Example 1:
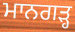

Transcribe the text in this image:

ਮਾਨਗੜ੍ਹ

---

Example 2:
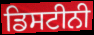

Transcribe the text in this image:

ਡਿਸਟੀਨੀ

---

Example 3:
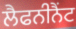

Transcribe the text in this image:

ਲੈਫਨੀਨੈਂਟ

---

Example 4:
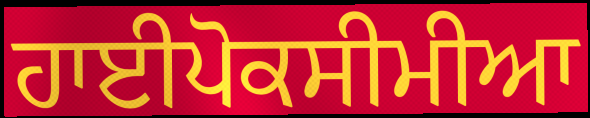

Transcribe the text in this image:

ਹਾਈਪੋਕਸੀਮੀਆ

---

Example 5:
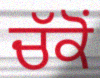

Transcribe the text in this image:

ਚੱਕੋਂ